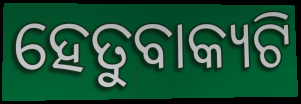
ହେତୁବାକ୍ୟଟି